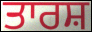
ਤਾਰਸ਼